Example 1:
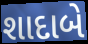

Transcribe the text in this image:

શાદાબે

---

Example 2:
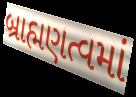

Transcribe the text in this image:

બ્રાહ્મણત્વમાં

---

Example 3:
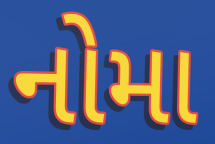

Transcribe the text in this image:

નોમા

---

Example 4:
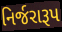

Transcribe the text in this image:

નિર્જરારૂપ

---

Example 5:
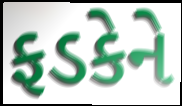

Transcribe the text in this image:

ફડકેને